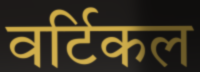
वर्टिकल